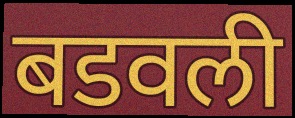
बडवली